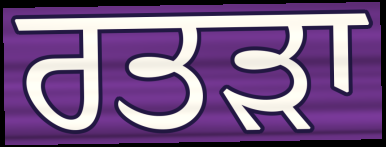
ਰਤੜਾ